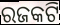
ରଜକଟି